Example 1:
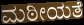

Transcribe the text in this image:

ಮಠೀಯತೆ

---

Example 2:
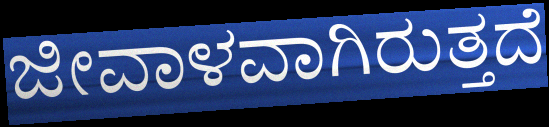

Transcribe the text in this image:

ಜೀವಾಳವಾಗಿರುತ್ತದೆ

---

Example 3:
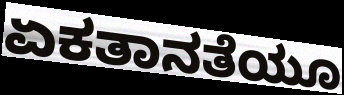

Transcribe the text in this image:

ಏಕತಾನತೆಯೂ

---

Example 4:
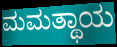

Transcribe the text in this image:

ಮಮತ್ಥಾಯ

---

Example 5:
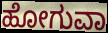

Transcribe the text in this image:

ಹೋಗುವಾ